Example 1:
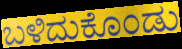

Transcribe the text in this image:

ಬಳಿದುಕೊಂಡು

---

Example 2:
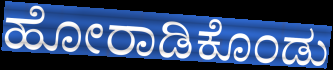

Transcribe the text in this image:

ಹೋರಾಡಿಕೊಂಡು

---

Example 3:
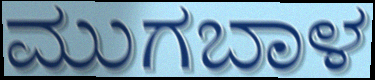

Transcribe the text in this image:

ಮುಗಬಾಳ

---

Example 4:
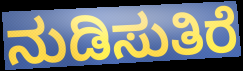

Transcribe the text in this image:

ನುಡಿಸುತಿರೆ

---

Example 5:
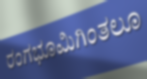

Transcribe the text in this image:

ರಂಗಭೂಮಿಗಿಂತಲೂ